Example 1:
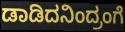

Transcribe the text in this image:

ಡಾಡಿದನಿಂದ್ರಂಗೆ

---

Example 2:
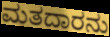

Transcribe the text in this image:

ಮತದಾರನು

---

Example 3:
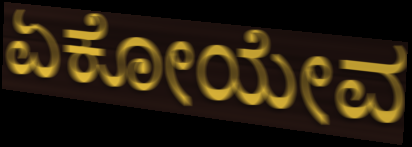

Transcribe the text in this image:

ಏಕೋಯೇವ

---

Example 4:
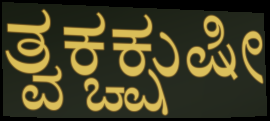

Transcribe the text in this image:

ತ್ವಕ್ಚಕ್ಷುಷೀ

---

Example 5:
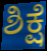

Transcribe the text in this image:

ಶಿಕ್ಷೆ